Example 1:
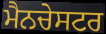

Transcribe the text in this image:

ਮੈਨਚੇਸਟਰ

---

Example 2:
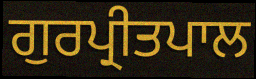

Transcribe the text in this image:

ਗੁਰਪ੍ਰੀਤਪਾਲ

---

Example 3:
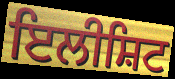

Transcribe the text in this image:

ਇਲੀਸ਼ਿਟ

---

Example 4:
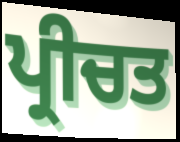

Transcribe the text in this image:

ਪ੍ਰੀਚਤ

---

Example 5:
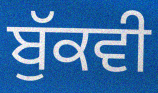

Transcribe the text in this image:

ਬੁੱਕਵੀ